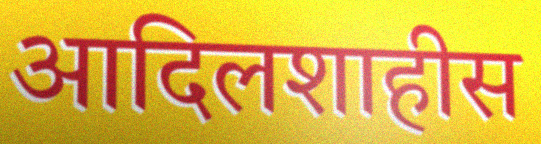
आदिलशाहीस